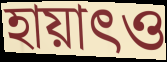
হায়াৎও